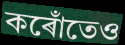
কৰোঁতেও